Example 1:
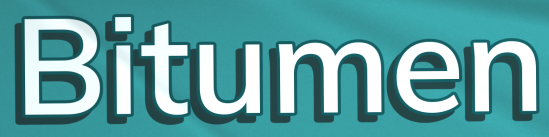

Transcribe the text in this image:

Bitumen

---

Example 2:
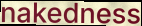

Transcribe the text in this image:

nakedness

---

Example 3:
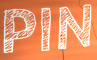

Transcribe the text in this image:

PIN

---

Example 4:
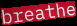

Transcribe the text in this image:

breathe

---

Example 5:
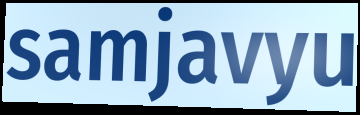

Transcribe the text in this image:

samjavyu